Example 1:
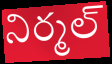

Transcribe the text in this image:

నిర్మల్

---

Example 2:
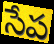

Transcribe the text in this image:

సేప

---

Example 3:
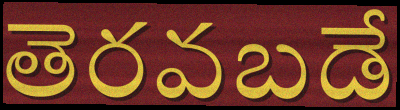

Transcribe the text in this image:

తెరవబడే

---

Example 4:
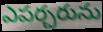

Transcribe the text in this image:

ఎపర్చరును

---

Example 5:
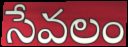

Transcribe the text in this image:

సేవలం